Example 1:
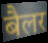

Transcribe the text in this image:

बैलर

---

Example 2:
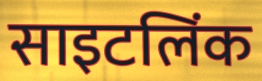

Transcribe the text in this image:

साइटलिंक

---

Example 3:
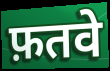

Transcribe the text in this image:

फ़तवे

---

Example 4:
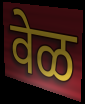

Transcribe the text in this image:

वेळ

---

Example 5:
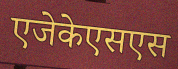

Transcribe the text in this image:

एजेकेएसएस